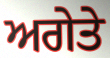
ਅਗੇਤੇ